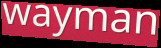
wayman